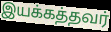
இயக்கத்தவர்